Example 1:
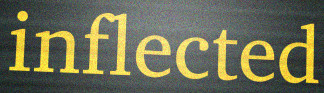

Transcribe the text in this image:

inflected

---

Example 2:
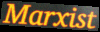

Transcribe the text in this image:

Marxist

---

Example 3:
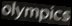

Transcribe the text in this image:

olympics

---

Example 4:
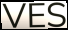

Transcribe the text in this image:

VES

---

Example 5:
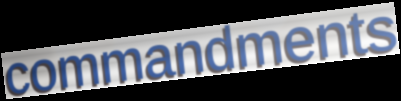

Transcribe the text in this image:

commandments